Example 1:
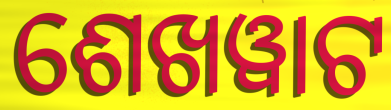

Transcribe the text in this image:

ଶେଖୱାଟ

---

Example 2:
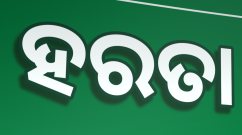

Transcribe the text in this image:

ହରତା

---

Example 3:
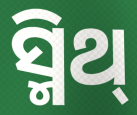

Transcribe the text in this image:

ସ୍ମିଥ୍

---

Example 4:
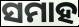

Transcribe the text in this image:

ସମାହ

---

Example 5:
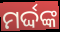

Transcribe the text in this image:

ମର୍ଦ୍ଦଙ୍କ